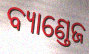
ବ୍ୟାଣ୍ଡେଜ